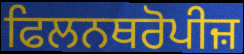
ਫਿਲਨਥਰੋਪੀਜ਼